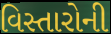
વિસ્તારોની